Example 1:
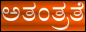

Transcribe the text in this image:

ಅತಂತ್ರತೆ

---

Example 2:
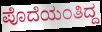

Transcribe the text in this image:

ಪೊದೆಯಂತಿದ್ದ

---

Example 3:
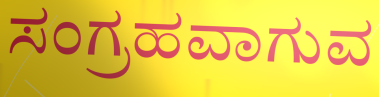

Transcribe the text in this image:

ಸಂಗ್ರಹವಾಗುವ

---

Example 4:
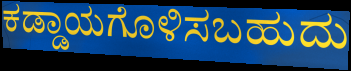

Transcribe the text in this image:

ಕಡ್ಡಾಯಗೊಳಿಸಬಹುದು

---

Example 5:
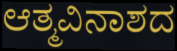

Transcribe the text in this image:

ಆತ್ಮವಿನಾಶದ